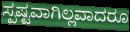
ಸ್ಪಷ್ಟವಾಗಿಲ್ಲವಾದರೂ